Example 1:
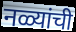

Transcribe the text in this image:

नळ्यांची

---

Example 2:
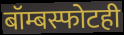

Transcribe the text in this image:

बॉम्बस्फोटही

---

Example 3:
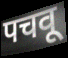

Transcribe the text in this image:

पचवू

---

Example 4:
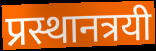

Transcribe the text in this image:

प्रस्थानत्रयी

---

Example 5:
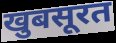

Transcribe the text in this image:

खुबसूरत